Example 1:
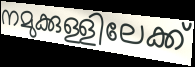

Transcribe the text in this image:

നമുക്കുള്ളിലേക്ക്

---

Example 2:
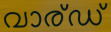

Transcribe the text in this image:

വാര്ഡ്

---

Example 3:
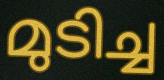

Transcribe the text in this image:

മുടിച്ച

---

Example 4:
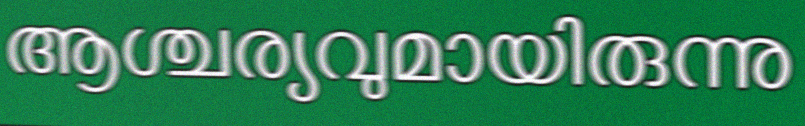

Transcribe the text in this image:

ആശ്ചര്യവുമായിരുന്നു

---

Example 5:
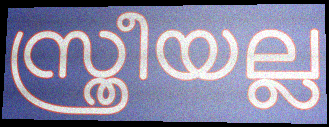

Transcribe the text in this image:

സ്ത്രീയല്ല